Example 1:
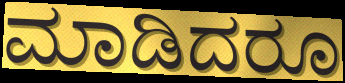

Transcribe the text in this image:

ಮಾಡಿದರೂ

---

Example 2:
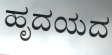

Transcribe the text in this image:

ಹೃದಯದ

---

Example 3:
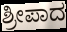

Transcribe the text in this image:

ಶ್ರೀಪಾದ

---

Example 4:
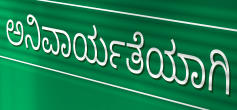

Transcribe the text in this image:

ಅನಿವಾರ್ಯತೆಯಾಗಿ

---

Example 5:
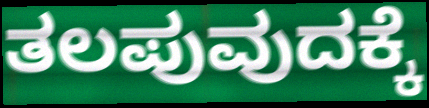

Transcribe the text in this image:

ತಲಪುವುದಕ್ಕೆ